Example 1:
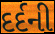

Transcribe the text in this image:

દર્દની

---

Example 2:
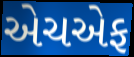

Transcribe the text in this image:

એચએફ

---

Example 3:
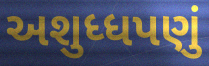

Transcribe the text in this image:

અશુધ્ધપણું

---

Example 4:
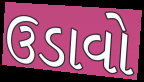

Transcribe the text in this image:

ઉડાવો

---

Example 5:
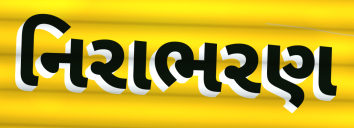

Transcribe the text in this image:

નિરાભરણ